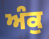
ਅੰਕੁ